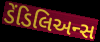
ડેંડિલિઅન્સ